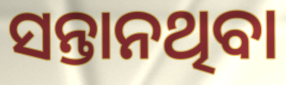
ସନ୍ତାନଥିବା